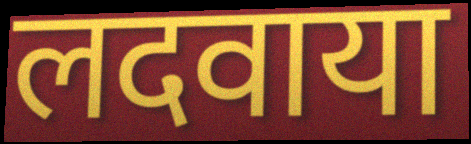
लदवाया